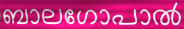
ബാലഗോപാൽ